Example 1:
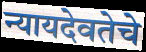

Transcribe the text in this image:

न्यायदेवतेचे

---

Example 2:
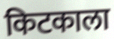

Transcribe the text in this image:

किटकाला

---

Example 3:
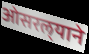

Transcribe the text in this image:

ओसरल्याने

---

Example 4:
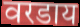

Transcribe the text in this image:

वरडाय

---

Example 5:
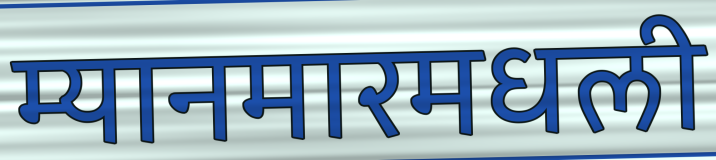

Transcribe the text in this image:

म्यानमारमधली